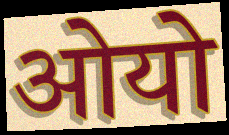
ओयो